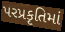
પરપ્રકૃતિમાં